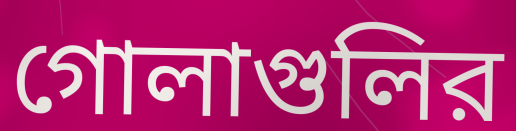
গোলাগুলির